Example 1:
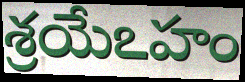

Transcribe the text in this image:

శ్రయేఽహం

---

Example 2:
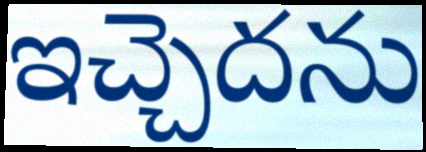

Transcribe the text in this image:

ఇచ్చెదను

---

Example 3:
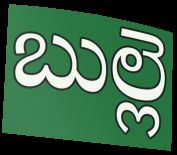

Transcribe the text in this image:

బుల్లె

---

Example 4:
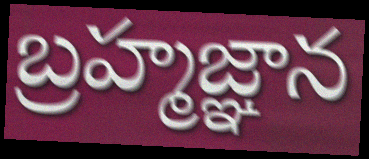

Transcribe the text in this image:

బ్రహ్మజ్ఞాన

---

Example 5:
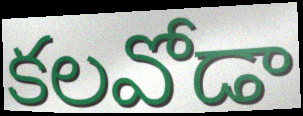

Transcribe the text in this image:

కలవోడా